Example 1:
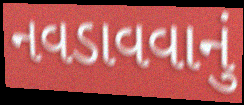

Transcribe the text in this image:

નવડાવવાનું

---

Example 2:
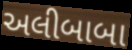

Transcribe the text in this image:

અલીબાબા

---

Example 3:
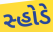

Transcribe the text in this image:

સ્હોડે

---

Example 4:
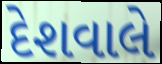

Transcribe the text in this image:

દેશવાલે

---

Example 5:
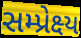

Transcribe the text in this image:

સમ્પ્રેક્ષ્ય